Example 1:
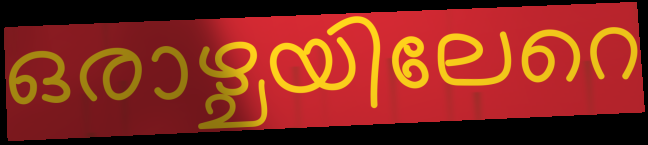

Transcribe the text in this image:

ഒരാഴ്ചയിലേറെ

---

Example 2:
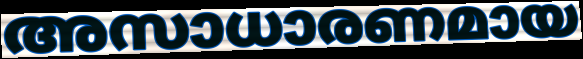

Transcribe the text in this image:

അസാധാരണമായ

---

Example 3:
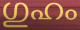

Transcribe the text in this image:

ഗുഹം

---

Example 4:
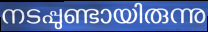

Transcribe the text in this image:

നടപ്പുണ്ടായിരുന്നു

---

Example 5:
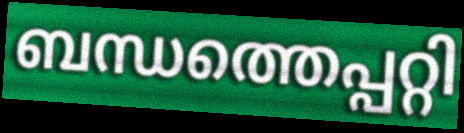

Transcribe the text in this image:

ബന്ധത്തെപ്പറ്റി